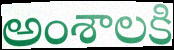
అంశాలకి